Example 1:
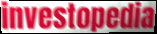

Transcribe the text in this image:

investopedia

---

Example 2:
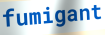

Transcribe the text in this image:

fumigant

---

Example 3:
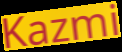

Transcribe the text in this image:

Kazmi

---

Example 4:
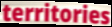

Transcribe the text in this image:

territories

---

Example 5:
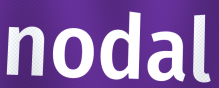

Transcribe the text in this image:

nodal